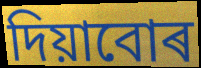
দিয়াবোৰ